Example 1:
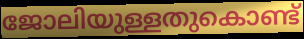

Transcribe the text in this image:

ജോലിയുള്ളതുകൊണ്ട്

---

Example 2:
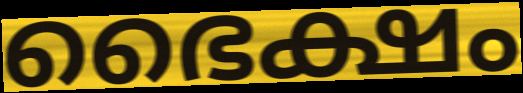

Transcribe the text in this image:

ഭൈക്ഷം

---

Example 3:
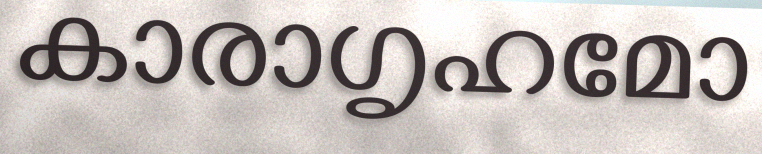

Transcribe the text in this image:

കാരാഗൃഹമോ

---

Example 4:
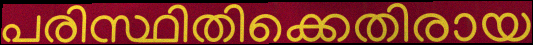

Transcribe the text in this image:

പരിസ്ഥിതിക്കെതിരായ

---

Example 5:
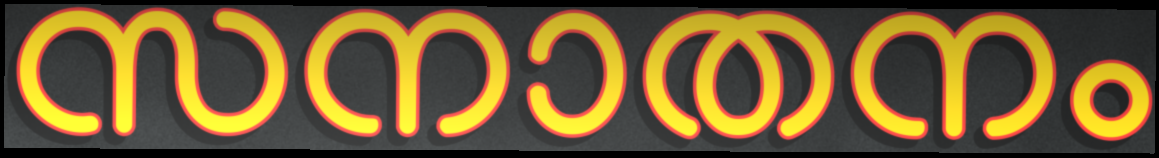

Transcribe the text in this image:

സനാതനം